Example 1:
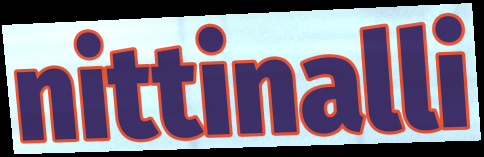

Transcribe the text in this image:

nittinalli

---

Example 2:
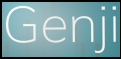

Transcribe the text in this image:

Genji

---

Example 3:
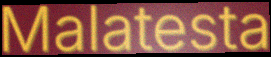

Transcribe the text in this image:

Malatesta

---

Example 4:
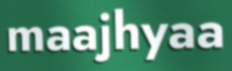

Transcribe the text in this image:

maajhyaa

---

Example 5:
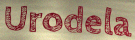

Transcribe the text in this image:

Urodela